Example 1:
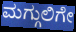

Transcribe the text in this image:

ಮಗ್ಗುಲಿಗೇ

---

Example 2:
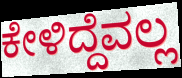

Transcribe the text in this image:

ಕೇಳಿದ್ದೆವಲ್ಲ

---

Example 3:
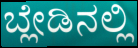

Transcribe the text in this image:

ಬ್ಲೇಡಿನಲ್ಲಿ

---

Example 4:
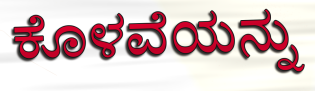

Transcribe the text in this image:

ಕೊಳವೆಯನ್ನು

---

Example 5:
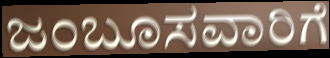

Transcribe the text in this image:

ಜಂಬೂಸವಾರಿಗೆ